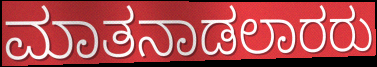
ಮಾತನಾಡಲಾರರು